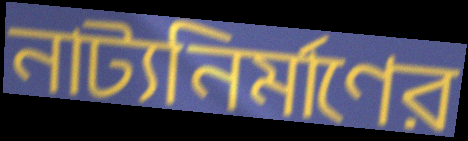
নাট্যনির্মাণের